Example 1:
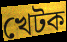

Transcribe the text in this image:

খেটক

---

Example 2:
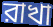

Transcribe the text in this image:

রাখা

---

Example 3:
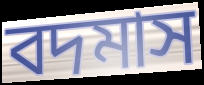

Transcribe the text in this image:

বদমাস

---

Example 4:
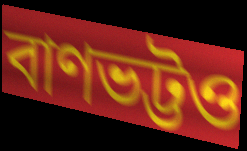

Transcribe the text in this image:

বাণভট্টও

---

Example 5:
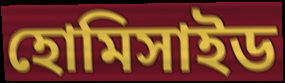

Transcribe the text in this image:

হোমিসাইড